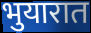
भुयारात